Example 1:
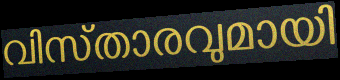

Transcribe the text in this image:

വിസ്‌താരവുമായി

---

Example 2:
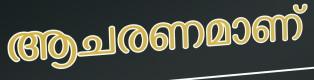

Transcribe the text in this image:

ആചരണമാണ്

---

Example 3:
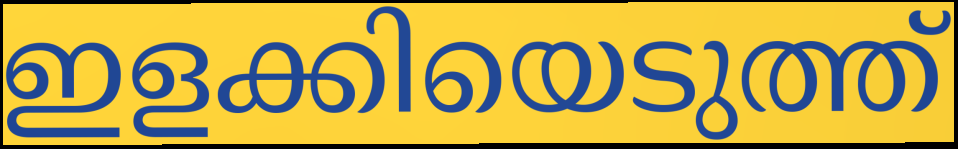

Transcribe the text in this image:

ഇളക്കിയെടുത്ത്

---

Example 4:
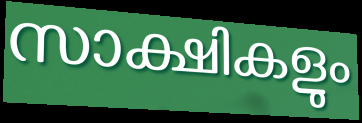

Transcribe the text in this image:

സാക്ഷികളും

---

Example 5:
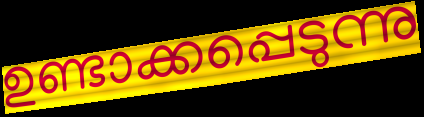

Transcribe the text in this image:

ഉണ്ടാക്കപ്പെടുന്നു